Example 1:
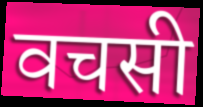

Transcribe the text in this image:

वचसी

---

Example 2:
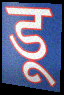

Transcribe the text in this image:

डू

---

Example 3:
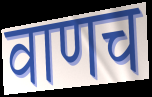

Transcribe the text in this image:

वाणच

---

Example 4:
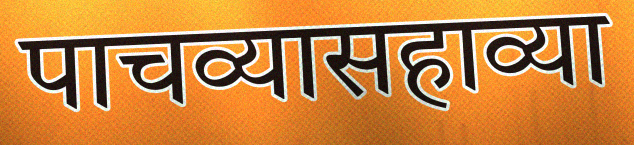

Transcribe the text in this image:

पाचव्यासहाव्या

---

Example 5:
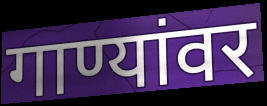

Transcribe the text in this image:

गाण्यांवर